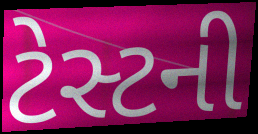
ટેસ્ટની